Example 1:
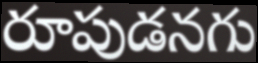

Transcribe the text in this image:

రూపుడనగు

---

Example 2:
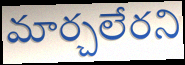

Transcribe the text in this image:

మార్చలేరని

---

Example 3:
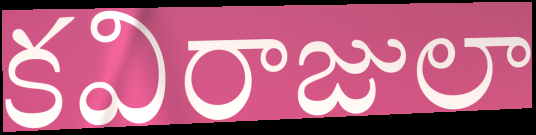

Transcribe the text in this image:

కవిరాజులా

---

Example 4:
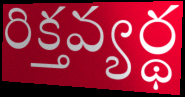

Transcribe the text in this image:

రిక్తవ్యర్థ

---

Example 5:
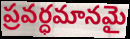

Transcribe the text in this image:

ప్రవర్ధమానమై